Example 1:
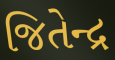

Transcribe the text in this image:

જિતેન્દ્ર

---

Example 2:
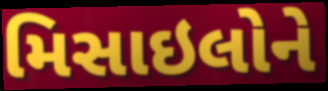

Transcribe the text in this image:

મિસાઇલોને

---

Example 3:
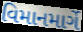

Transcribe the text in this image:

વિમાનમાર્ગે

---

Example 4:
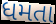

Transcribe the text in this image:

ધમતા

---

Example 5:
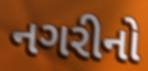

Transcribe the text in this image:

નગરીનો